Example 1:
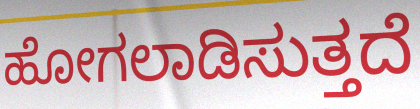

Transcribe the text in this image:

ಹೋಗಲಾಡಿಸುತ್ತದೆ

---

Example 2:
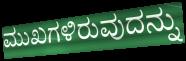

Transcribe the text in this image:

ಮುಖಗಳಿರುವುದನ್ನು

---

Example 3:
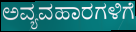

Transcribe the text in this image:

ಅವ್ಯವಹಾರಗಳಿಗೆ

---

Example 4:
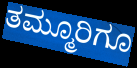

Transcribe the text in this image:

ತಮ್ಮೂರಿಗೂ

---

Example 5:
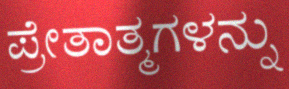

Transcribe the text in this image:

ಪ್ರೇತಾತ್ಮಗಳನ್ನು